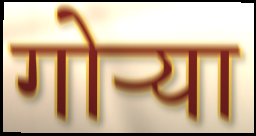
गोऱ्या